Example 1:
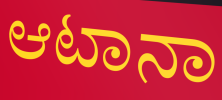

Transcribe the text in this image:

ಆಟಾನಾ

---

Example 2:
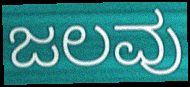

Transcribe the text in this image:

ಜಲವು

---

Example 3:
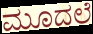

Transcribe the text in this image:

ಮೂದಲೆ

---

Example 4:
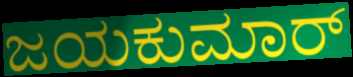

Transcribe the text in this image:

ಜಯಕುಮಾರ್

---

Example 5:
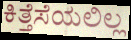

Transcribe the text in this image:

ಕಿತ್ತೆಸೆಯಲಿಲ್ಲ